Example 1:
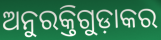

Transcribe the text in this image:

ଅନୁରକ୍ତିଗୁଡ଼ାକର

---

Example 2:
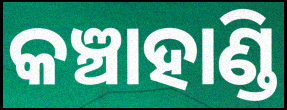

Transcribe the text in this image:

କଞ୍ଚାହାଣ୍ଡି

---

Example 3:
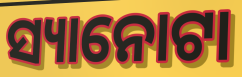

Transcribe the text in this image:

ସ୍ୟାନୋଟା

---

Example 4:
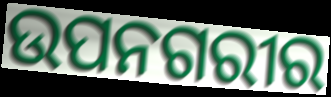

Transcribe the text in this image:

ଉପନଗରୀର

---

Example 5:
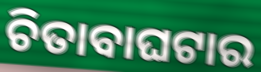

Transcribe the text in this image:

ଚିତାବାଘଟାର